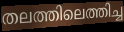
തലത്തിലെത്തിച്ച